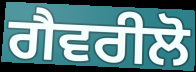
ਗੈਵਰੀਲੋ